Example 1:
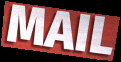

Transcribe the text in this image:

MAIL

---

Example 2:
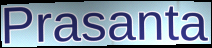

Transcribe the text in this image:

Prasanta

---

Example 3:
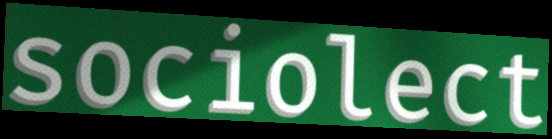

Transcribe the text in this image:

sociolect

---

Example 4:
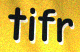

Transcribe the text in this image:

tifr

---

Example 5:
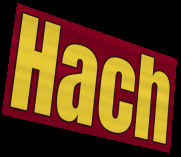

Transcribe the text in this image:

Hach